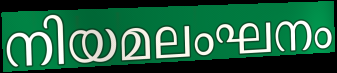
നിയമലംഘനം